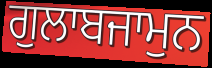
ਗੁਲਾਬਜਾਮੁਨ